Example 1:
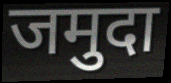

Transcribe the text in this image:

जमुदा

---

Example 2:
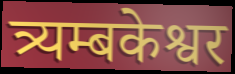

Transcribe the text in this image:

त्र्यम्बकेश्वर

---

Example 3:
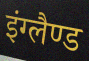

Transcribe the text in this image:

इंग्लैण्ड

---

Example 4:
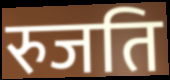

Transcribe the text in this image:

रुजति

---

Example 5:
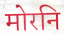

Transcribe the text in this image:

मोरनि